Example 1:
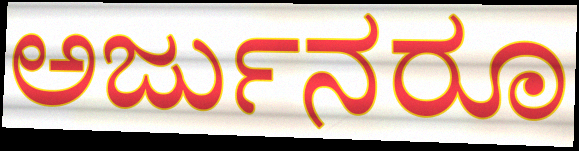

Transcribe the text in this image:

ಅರ್ಜುನರೂ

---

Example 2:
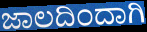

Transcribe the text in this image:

ಜಾಲದಿಂದಾಗಿ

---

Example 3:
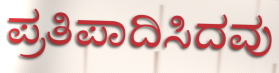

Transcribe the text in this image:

ಪ್ರತಿಪಾದಿಸಿದವು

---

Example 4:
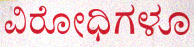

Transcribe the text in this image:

ವಿರೋಧಿಗಳೂ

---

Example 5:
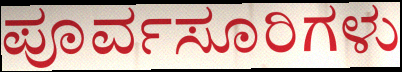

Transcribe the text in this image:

ಪೂರ್ವಸೂರಿಗಳು